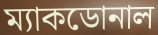
ম্যাকডোনাল